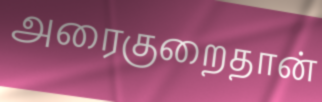
அரைகுறைதான்